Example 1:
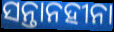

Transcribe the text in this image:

ସନ୍ତାନହୀନା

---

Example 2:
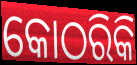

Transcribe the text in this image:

କୋଠରିକି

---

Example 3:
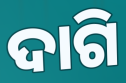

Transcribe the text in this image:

ଦାଗି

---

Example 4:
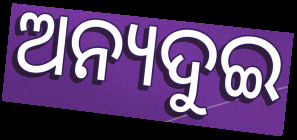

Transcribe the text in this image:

ଅନ୍ୟଦୁଇ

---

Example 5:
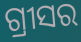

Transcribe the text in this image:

ଗ୍ରୀସର